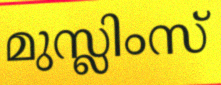
മുസ്ലിംസ്